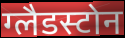
ग्लैडस्टोन